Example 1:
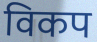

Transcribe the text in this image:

विकप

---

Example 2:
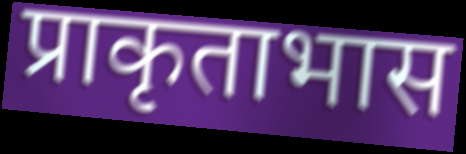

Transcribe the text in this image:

प्राकृताभास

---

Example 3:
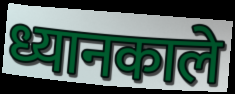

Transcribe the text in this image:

ध्यानकाले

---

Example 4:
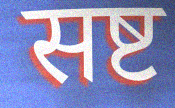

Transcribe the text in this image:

सष्ट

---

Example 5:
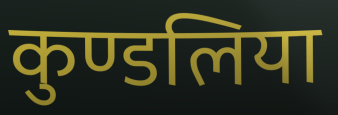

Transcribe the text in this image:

कुण्डलिया